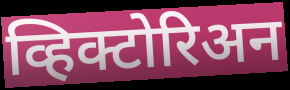
व्हिक्टोरिअन